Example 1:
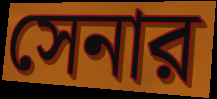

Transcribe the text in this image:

সেনার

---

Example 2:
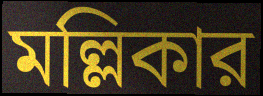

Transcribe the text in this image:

মল্লিকার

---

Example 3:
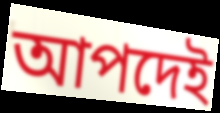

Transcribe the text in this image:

আপদেই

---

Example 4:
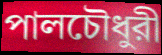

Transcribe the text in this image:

পালচৌধুরী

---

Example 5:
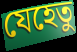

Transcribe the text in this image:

যেহেতু